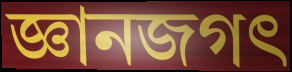
জ্ঞানজগৎ